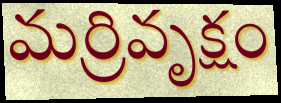
మర్రివృక్షం